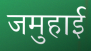
जमुहाई